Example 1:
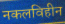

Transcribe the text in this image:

नकलविहीन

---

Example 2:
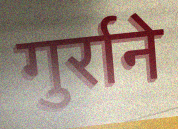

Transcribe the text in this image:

गुर्राने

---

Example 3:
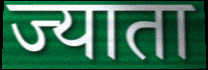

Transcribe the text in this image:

ज्याता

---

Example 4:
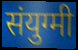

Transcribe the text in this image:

संयुग्मी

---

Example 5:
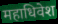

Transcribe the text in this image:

महाधिवेश